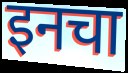
इनचा